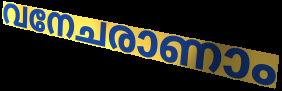
വനേചരാണാം